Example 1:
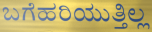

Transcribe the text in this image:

ಬಗೆಹರಿಯುತ್ತಿಲ್ಲ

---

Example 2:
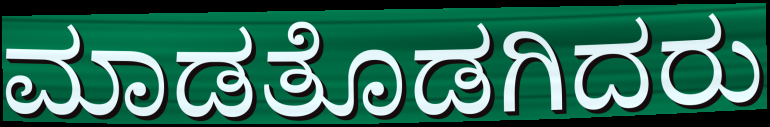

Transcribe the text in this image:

ಮಾಡತೊಡಗಿದರು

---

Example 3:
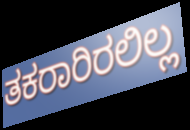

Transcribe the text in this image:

ತಕರಾರಿರಲಿಲ್ಲ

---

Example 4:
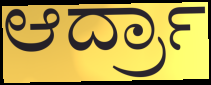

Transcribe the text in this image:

ಆರ್ದ್ರಾ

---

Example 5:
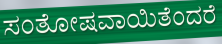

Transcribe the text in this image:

ಸಂತೋಷವಾಯಿತೆಂದರೆ